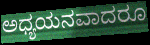
ಅಧ್ಯಯನವಾದರೂ